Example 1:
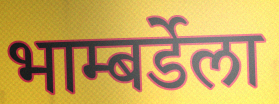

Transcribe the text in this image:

भाम्बर्डेला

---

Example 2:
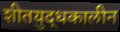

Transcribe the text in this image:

शीतयुद्धकालीन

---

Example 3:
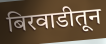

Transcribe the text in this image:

बिरवाडीतून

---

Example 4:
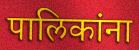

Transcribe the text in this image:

पालिकांना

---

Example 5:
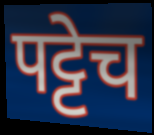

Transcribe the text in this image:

पट्टेच